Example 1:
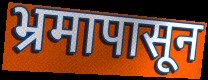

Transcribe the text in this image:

भ्रमापासून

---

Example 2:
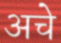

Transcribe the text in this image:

अचे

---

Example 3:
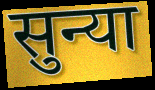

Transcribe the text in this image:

सुन्या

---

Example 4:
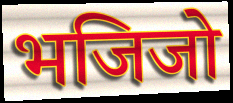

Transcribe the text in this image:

भजिजो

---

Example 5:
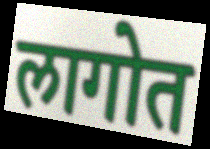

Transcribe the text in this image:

लागोत